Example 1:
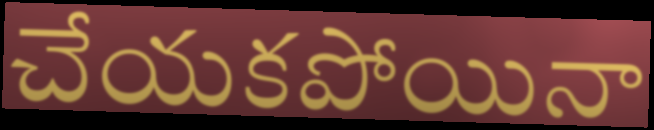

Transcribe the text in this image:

చేయకపోయినా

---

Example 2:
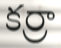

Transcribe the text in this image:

కర్రా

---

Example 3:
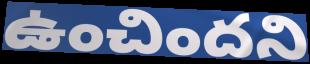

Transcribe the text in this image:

ఉంచిందని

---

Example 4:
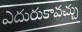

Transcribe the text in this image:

ఎదురుకావచ్చు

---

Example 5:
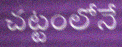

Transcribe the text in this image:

చట్టంలోనే